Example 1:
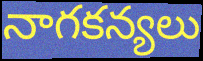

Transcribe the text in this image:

నాగకన్యలు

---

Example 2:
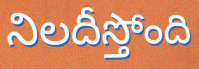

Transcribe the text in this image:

నిలదీస్తోంది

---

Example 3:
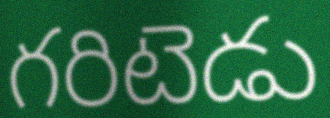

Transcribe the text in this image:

గరిటెడు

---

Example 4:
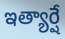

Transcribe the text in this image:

ఇత్యార్షే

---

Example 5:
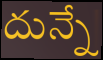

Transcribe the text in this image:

దున్నే